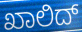
ಖಾಲಿದ್